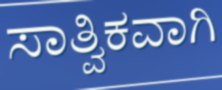
ಸಾತ್ವಿಕವಾಗಿ